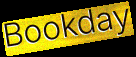
Bookday